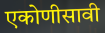
एकोणीसावी